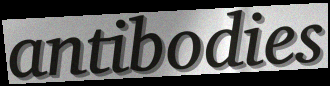
antibodies